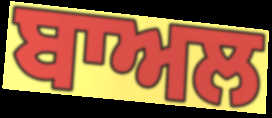
ਬਾਅਲ